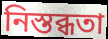
নিস্তব্ধতা